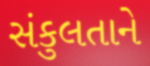
સંકુલતાને